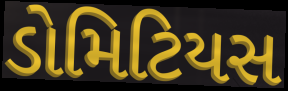
ડોમિટિયસ